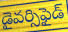
డైవర్సిఫైడ్